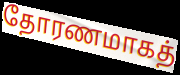
தோரணமாகத்